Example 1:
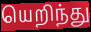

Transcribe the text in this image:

யெறிந்து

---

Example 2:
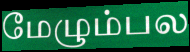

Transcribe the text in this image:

மேழும்பல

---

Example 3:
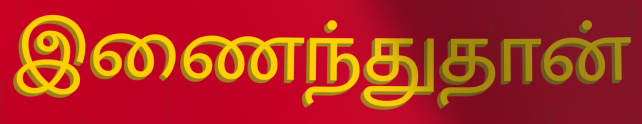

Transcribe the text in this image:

இணைந்துதான்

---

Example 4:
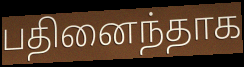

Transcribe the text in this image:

பதினைந்தாக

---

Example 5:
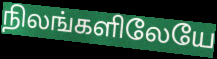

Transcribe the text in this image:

நிலங்களிலேயே